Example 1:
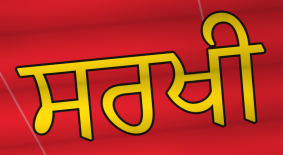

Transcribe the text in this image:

ਸਰਖੀ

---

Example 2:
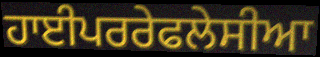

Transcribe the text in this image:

ਹਾਈਪਰਰੇਫਲੇਸੀਆ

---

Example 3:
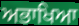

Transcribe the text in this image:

ਅਭਾਖਿਆ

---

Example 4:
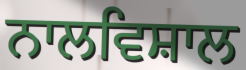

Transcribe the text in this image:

ਨਾਲਵਿਸ਼ਾਲ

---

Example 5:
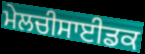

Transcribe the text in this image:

ਮੇਲਚੀਸਾਈਡਕ